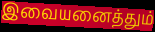
இவையனைத்தும்